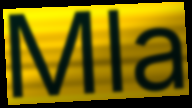
Mla